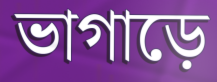
ভাগাড়ে